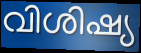
വിശിഷ്യ